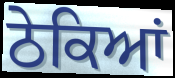
ਠੇਕਿਆਂ